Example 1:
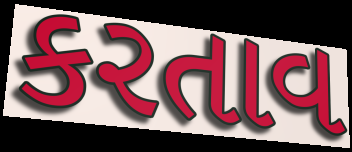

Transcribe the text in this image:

કરતાવ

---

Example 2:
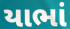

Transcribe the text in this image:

યાભાં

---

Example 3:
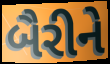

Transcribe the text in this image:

બૈરીને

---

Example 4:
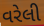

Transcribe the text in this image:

વરેલી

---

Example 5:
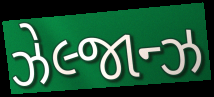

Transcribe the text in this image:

ઝેલ્જાન્ઝ